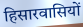
हिसारवासियों